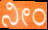
ನೀಂ